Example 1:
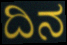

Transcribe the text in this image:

ದಿನ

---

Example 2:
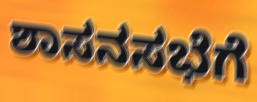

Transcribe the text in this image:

ಶಾಸನಸಭೆಗೆ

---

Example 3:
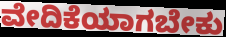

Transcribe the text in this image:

ವೇದಿಕೆಯಾಗಬೇಕು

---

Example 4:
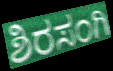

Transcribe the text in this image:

ಶಿರಸಂಗಿ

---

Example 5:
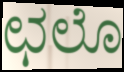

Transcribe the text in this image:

ಛಲೊ